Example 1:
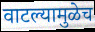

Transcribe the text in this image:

वाटल्यामुळेच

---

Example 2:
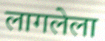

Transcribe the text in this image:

लागलेला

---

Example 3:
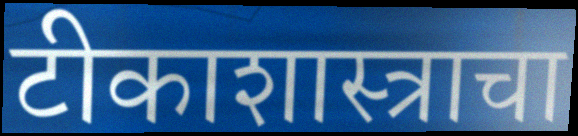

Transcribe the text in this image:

टीकाशास्त्राचा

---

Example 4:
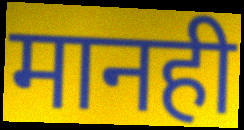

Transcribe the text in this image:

मानही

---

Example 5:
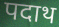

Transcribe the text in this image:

पदाथ